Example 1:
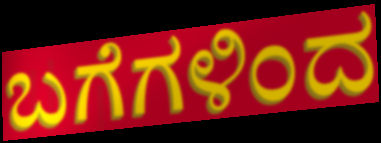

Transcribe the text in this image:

ಬಗೆಗಳಿಂದ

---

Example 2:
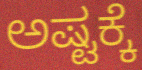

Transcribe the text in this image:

ಅಷ್ಟಕ್ಕೆ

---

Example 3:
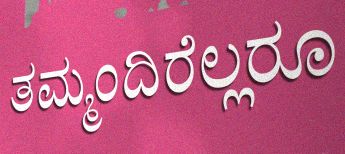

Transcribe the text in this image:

ತಮ್ಮಂದಿರೆಲ್ಲರೂ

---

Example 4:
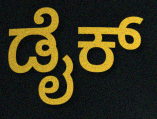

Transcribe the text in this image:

ಡೈಕ್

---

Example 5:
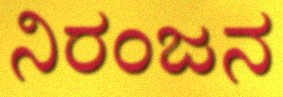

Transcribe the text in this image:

ನಿರಂಜನ